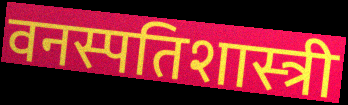
वनस्पतिशास्त्री